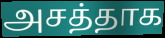
அசத்தாக